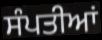
ਸੰਪਤੀਆਂ